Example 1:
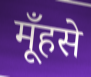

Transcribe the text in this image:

मूँहसे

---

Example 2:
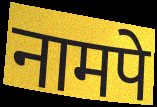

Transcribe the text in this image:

नामपे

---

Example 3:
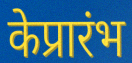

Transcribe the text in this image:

केप्रारंभ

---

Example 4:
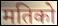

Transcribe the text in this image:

मतिको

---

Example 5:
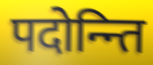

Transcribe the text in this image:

पदोन्न्ति